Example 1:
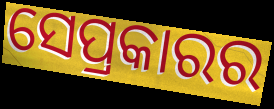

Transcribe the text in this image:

ସେପ୍ରକାରର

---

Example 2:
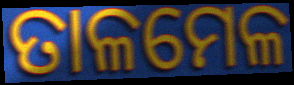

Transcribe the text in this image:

ତାଳମେଳ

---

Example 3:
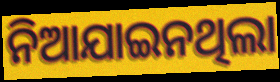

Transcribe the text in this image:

ନିଆଯାଇନଥିଲା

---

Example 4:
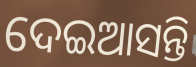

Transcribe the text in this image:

ଦେଇଆସନ୍ତି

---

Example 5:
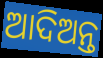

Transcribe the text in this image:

ଆଦିଅନ୍ତ